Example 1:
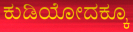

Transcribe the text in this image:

ಕುಡಿಯೋದಕ್ಕೂ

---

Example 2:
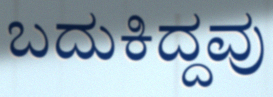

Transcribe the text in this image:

ಬದುಕಿದ್ದವು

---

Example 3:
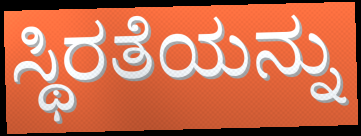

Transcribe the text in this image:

ಸ್ಥಿರತೆಯನ್ನು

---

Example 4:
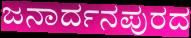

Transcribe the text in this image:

ಜನಾರ್ದನಪುರದ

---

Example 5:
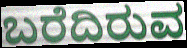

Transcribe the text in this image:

ಬರೆದಿರುವ